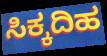
ಸಿಕ್ಕದಿಹ